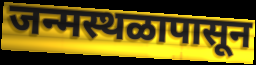
जन्मस्थळापासून